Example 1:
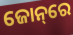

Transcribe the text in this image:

ଜୋନ୍‌ରେ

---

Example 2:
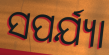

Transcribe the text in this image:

ସପର୍ଯ୍ୟା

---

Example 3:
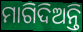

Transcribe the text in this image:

ମାଗିଦିଅନ୍ତି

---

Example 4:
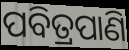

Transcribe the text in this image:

ପବିତ୍ରପାଣି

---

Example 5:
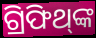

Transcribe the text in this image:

ଗ୍ରିଫିଥ୍‌ଙ୍କ